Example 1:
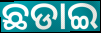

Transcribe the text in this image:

ଛଡାଇ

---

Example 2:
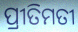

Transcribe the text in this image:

ପ୍ରୀତିମତୀ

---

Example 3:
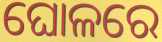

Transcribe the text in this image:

ଘୋଳରେ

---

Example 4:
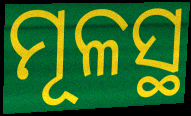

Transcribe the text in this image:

ମୂଳସ୍ଥ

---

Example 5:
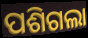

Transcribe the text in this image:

ପଶିଗଲା